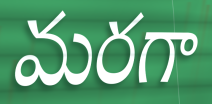
మరగా